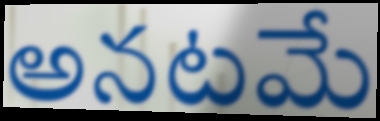
అనటమే